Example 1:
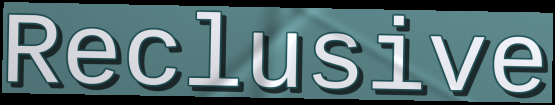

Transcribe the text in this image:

Reclusive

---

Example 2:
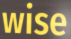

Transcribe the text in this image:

wise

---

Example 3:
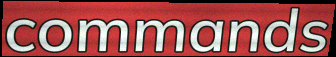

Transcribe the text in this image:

commands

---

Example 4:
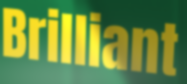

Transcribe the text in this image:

Brilliant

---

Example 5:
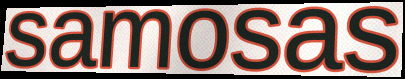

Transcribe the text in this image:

samosas